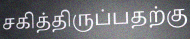
சகித்திருப்பதற்கு